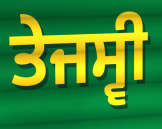
ਤੇਜਸ੍ਵੀ